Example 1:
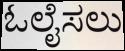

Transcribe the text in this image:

ಓಲೈಸಲು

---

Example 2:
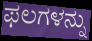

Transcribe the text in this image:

ಫಲಗಳನ್ನು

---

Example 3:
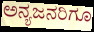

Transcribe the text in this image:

ಅನ್ಯಜನರಿಗೂ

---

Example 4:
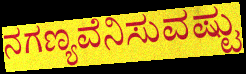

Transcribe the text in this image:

ನಗಣ್ಯವೆನಿಸುವಷ್ಟು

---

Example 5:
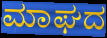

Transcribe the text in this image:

ಮಾಘದ